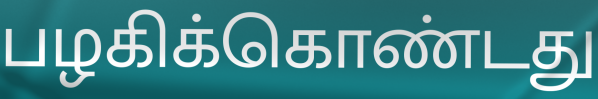
பழகிக்கொண்டது